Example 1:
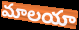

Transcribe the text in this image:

మాలయా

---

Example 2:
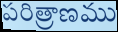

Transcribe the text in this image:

పరిత్రాణము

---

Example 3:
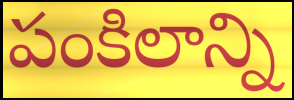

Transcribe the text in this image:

పంకిలాన్ని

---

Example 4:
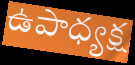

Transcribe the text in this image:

ఉపాధ్యక్ష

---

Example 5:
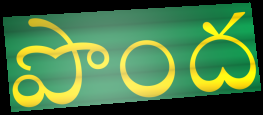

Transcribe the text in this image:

పొంద